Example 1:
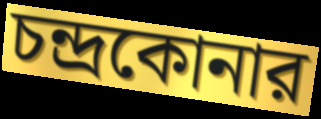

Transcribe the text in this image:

চন্দ্রকোনার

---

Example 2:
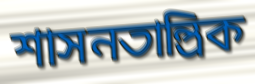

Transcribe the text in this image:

শাসনতান্ত্রিক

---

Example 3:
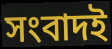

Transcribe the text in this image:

সংবাদই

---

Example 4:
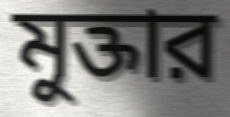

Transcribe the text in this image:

মুক্তার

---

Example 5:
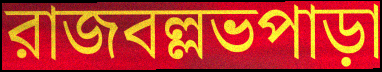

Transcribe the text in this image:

রাজবল্লভপাড়া